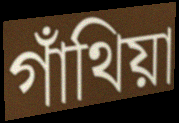
গাঁথিয়া